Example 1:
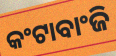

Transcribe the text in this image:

କଂଟାବାଂଜି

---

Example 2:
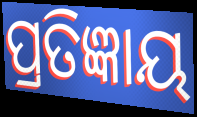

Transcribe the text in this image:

ପ୍ରତିଜ୍ଞାୟ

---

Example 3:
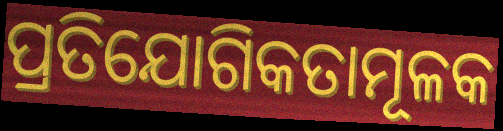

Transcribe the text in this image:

ପ୍ରତିଯୋଗିକତାମୂଳକ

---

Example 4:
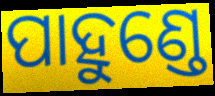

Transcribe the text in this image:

ପାହୁଣ୍ଡେ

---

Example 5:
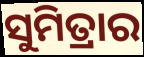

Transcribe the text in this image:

ସୁମିତ୍ରାର